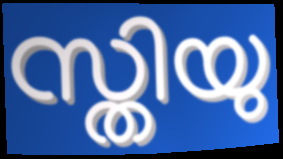
സ്തിയു